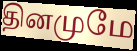
தினமுமே